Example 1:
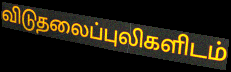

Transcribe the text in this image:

விடுதலைப்புலிகளிடம்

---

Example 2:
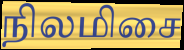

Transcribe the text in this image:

நிலமிசை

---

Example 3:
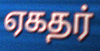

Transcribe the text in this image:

ஏகதர்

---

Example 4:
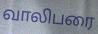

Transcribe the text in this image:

வாலிபரை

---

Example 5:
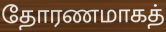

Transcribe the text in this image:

தோரணமாகத்